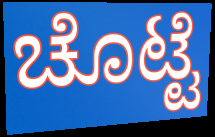
ಚೊಟ್ಟೆ